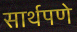
सार्थपणे